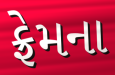
ફ્રેમના